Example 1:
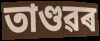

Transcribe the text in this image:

তাণ্ডৱৰ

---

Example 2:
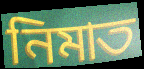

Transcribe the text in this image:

নিমাত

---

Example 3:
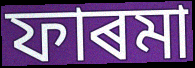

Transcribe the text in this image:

ফাৰমা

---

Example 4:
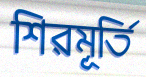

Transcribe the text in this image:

শিৱমূৰ্তি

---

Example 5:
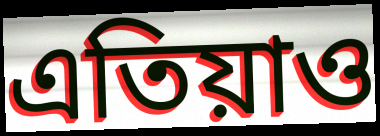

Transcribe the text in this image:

এতিয়াও